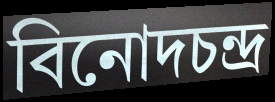
বিনোদচন্দ্র